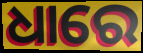
ଧାରେ